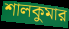
শালকুমার